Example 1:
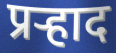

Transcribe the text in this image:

प्रर्‍हाद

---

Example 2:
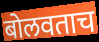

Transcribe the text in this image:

बोलवताच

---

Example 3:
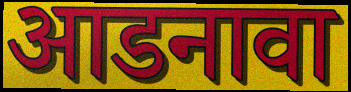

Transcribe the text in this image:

आडनावा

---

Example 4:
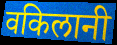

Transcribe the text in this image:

वकिलानी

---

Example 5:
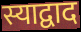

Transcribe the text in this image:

स्याद्वाद